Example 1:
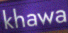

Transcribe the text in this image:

khawa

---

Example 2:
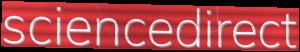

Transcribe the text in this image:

sciencedirect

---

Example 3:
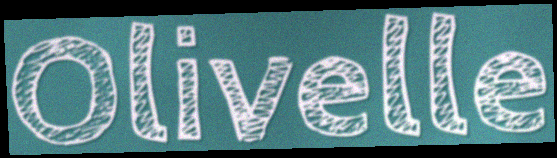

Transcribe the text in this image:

Olivelle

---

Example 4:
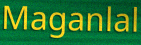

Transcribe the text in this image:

Maganlal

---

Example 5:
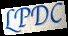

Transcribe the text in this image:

LPDC